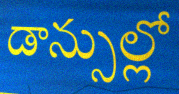
డాన్సుల్లో